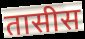
तासीस